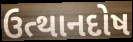
ઉત્થાનદોષ